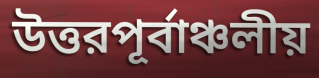
উত্তরপূর্বাঞ্চলীয়